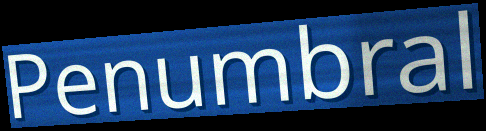
Penumbral